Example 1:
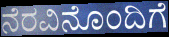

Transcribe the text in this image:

ನೆರವಿನೊಂದಿಗೆ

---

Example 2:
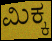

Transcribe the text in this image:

ಮಿಕ್ಕ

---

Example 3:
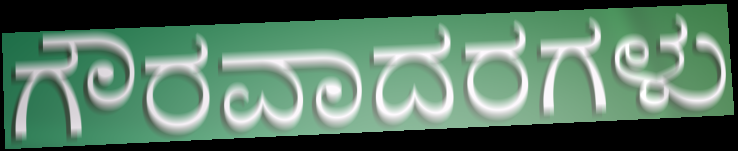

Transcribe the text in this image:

ಗೌರವಾದರಗಳು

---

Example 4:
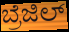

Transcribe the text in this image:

ಬ್ರೆಜಿಲ್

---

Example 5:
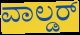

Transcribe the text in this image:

ವಾಲ್ಡರ್